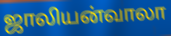
ஜாலியன்வாலா